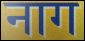
नाग